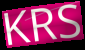
KRS